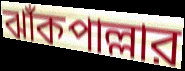
ঝাঁকপাল্লার